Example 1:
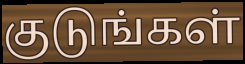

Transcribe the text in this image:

குடுங்கள்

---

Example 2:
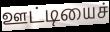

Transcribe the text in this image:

ஊட்டியைச்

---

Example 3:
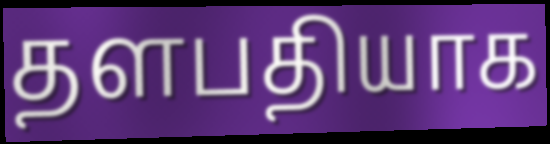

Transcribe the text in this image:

தளபதியாக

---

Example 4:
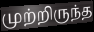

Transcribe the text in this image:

முற்றிருந்த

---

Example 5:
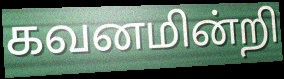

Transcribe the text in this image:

கவனமின்றி